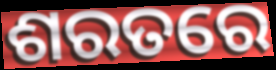
ଶରତରେ